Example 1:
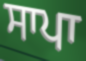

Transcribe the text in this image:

ਸਾਪਾ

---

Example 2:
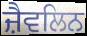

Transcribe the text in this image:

ਜ਼ੈਵਲਿਨ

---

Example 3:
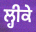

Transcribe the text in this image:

ਲ੍ਹੀਕੇ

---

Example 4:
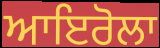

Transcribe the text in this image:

ਆਇਰੋਲਾ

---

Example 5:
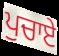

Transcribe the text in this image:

ਪੁਚਾਏ